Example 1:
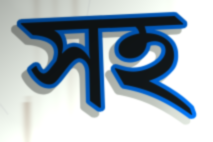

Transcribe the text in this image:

সহ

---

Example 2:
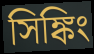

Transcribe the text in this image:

সিঙ্কিং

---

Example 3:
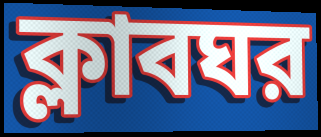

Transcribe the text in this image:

ক্লাবঘর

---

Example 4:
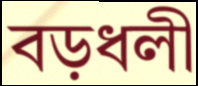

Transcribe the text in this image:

বড়ধলী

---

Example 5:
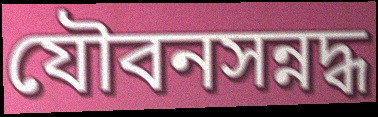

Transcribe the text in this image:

যৌবনসন্নদ্ধ